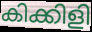
കിക്കിളി